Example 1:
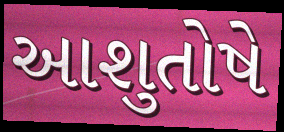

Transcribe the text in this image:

આશુતોષે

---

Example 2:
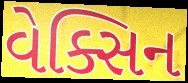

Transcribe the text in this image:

વેક્સિન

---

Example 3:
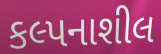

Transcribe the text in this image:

કલ્પનાશીલ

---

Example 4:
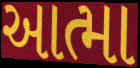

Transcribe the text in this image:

આત્મા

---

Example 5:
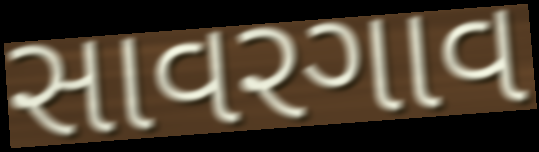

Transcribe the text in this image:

સાવરગાવ